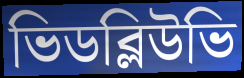
ভিডব্লিউভি